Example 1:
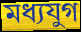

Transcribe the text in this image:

মধ্যযুগ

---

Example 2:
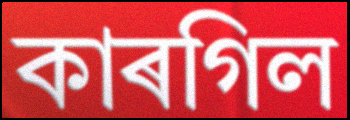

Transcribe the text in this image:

কাৰগিল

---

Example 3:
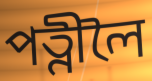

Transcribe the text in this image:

পত্নীলৈ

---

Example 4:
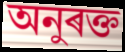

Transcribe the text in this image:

অনুৰক্ত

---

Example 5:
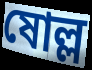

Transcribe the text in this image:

ষোল্ল